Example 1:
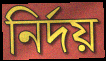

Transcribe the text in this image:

নিৰ্দয়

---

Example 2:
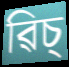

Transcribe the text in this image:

ৱিচ্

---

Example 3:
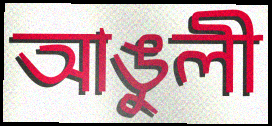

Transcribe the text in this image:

আঙুলী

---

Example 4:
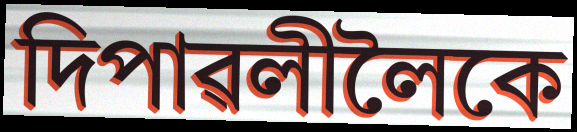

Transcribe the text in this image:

দিপাৱলীলৈকে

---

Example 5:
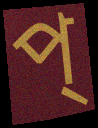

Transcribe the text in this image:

প্